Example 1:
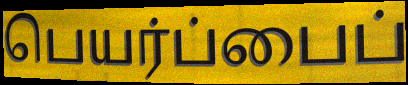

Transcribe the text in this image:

பெயர்ப்பைப்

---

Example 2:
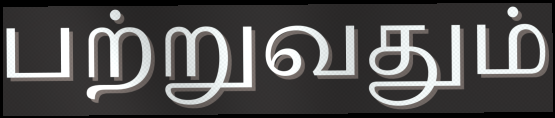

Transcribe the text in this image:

பற்றுவதும்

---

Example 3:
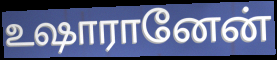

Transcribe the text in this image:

உஷாரானேன்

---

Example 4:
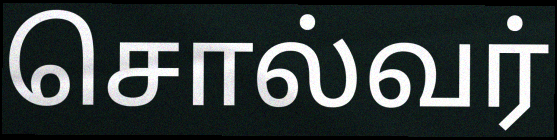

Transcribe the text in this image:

சொல்வர்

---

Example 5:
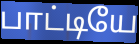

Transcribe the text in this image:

பாட்டியே